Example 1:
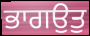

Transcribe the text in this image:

ਭਾਗਉਤੁ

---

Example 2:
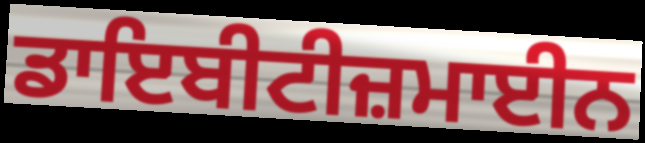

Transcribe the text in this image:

ਡਾਇਬੀਟੀਜ਼ਮਾਈਨ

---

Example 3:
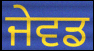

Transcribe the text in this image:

ਜੇਵਡ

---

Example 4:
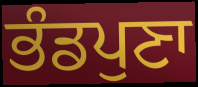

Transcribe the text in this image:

ਭੰਡਪੁਣਾ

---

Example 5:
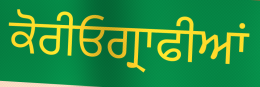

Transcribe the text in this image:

ਕੋਰੀਓਗ੍ਰਾਫੀਆਂ